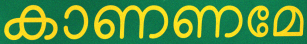
കാണണമേ